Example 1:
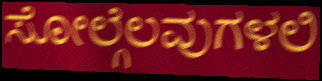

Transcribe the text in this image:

ಸೋಲ್ಗೆಲವುಗಳಲಿ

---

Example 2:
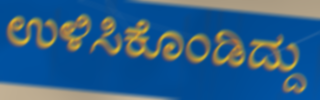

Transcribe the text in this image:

ಉಳಿಸಿಕೊಂಡಿದ್ದು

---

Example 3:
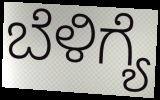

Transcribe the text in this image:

ಬೆಳಿಗ್ಯೆ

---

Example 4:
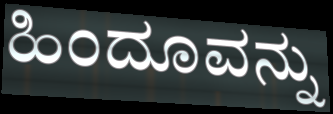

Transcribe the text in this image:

ಹಿಂದೂವನ್ನು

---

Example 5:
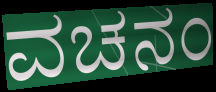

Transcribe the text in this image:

ವಚನಂ